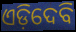
ଏଡ଼ିଦେବି